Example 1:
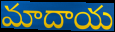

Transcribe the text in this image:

మాదాయ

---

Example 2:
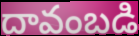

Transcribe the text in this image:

దావంబడి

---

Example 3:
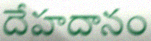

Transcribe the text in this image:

దేహదానం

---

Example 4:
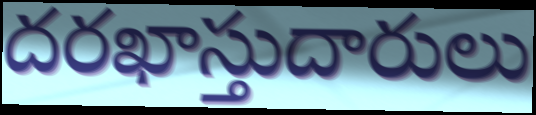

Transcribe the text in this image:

దరఖాస్తుదారులు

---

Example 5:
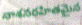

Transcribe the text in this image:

నాశనరహితమైన